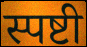
स्पष्टी